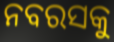
ନବରସକୁ